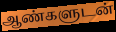
ஆண்களுடன்